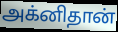
அக்னிதான்